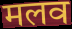
मलव